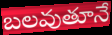
బలవుతూనే